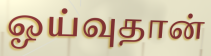
ஓய்வுதான்